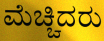
ಮೆಚ್ಚಿದರು